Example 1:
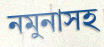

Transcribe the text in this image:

নমুনাসহ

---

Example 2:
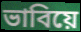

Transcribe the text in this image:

ভাবিয়ে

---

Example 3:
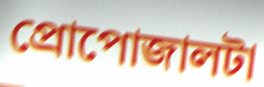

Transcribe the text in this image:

প্রোপোজালটা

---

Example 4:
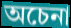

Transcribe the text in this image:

অচেনা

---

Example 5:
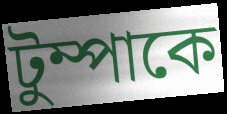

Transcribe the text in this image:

টুম্পাকে